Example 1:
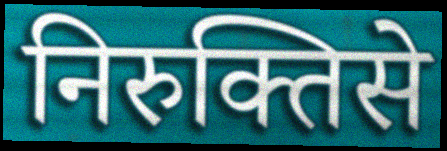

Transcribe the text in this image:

निरुक्तिसे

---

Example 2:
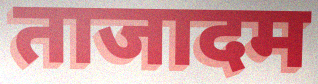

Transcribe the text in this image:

ताजादम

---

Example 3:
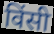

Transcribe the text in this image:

विंसी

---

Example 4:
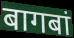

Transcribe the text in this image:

बागबां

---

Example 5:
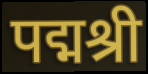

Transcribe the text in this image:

पद्मश्री